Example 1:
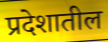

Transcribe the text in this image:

प्रदेशातील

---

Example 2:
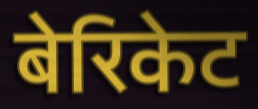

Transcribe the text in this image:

बेरिकेट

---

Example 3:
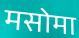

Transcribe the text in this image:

मसोमा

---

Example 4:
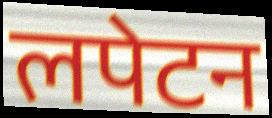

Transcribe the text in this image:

लपेटन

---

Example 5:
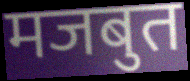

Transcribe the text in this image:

मजबुत